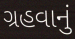
ગ્રહવાનું